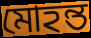
মোহন্ত